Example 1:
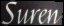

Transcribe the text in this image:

Suren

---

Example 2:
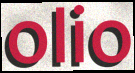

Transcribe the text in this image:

olio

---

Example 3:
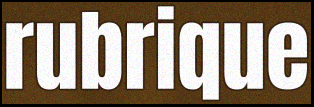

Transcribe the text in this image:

rubrique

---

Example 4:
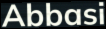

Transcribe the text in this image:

Abbasi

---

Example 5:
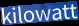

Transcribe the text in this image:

kilowatt